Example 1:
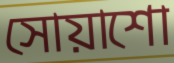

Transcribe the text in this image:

সোয়াশো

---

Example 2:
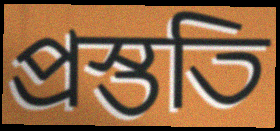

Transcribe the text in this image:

প্রস্ততি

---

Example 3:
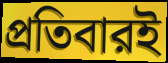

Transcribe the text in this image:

প্রতিবারই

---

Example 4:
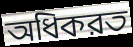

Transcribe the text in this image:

অধিকরত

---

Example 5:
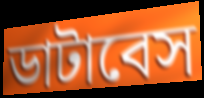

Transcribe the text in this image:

ডাটাবেস